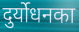
दुर्योधनका